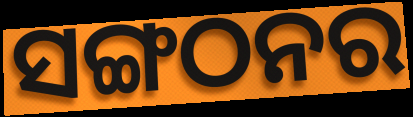
ସଙ୍ଗଠନର